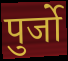
पुर्जो